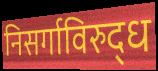
निसर्गाविरुद्ध